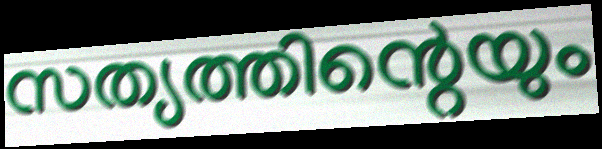
സത്യത്തിന്റെയും